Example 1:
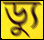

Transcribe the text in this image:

ড্যু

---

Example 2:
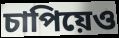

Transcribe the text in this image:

চাপিয়েও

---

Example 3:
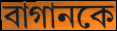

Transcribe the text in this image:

বাগানকে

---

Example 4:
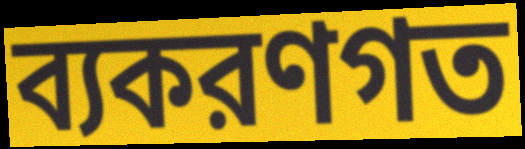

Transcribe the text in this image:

ব্যকরণগত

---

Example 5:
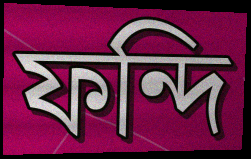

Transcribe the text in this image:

ফন্দি